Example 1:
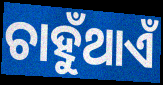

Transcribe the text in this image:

ଚାହୁଁଥାଏଁ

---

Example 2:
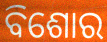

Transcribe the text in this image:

ବିଶୋର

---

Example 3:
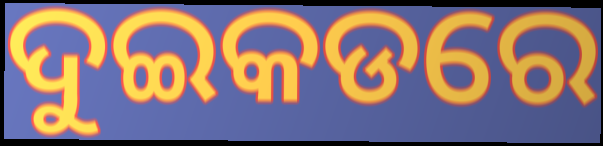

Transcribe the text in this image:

ଦୁଇକଡରେ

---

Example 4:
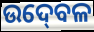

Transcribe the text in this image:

ଉଦ୍‍ବେଳ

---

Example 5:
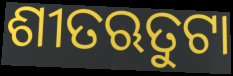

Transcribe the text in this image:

ଶୀତଋତୁଟା